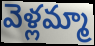
వెళ్లమ్మా